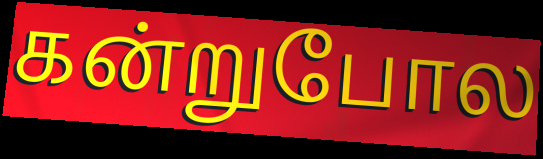
கன்றுபோல